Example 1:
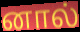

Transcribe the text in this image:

னால்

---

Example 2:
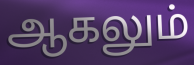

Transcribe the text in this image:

ஆகலும்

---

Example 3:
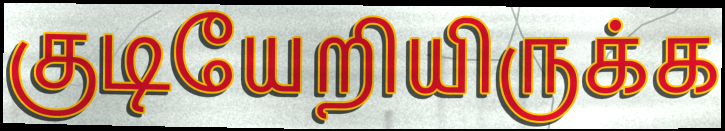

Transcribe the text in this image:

குடியேறியிருக்க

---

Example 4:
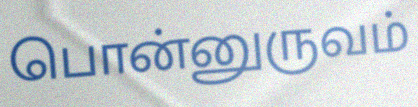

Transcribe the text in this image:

பொன்னுருவம்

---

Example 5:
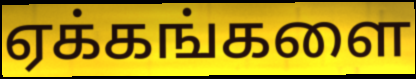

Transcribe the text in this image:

ஏக்கங்களை